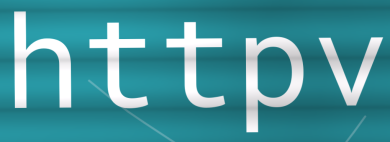
httpv